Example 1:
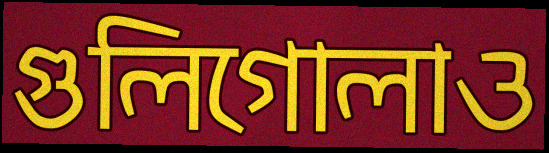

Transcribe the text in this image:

গুলিগোলাও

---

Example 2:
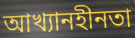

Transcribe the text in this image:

আখ্যানহীনতা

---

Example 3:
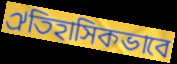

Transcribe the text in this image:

ঐতিহাসিকভাবে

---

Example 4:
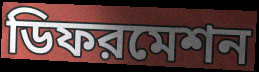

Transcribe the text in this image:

ডিফরমেশন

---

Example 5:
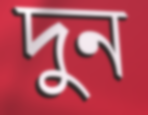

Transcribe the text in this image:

দুন